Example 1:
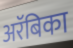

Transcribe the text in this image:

अरॅबिका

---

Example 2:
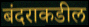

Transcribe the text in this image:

बंदराकडील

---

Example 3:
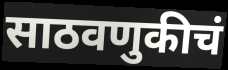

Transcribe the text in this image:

साठवणुकीचं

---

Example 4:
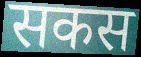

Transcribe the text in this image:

सकस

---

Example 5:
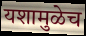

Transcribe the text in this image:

यशामुळेच